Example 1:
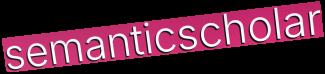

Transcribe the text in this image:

semanticscholar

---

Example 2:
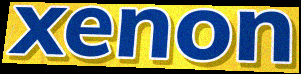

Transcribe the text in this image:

xenon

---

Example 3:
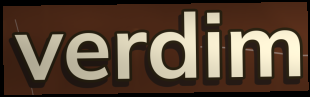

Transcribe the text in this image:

verdim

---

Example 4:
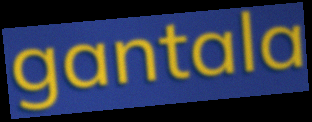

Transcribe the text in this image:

gantala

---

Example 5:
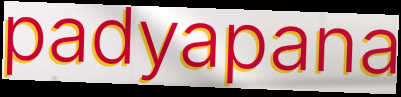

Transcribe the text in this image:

padyapana